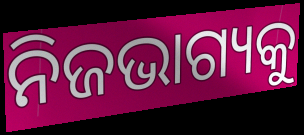
ନିଜଭାଗ୍ୟକୁ